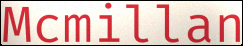
Mcmillan